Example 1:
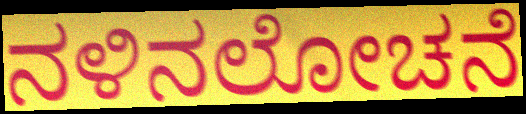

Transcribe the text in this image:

ನಳಿನಲೋಚನೆ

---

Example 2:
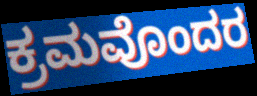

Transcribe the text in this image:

ಕ್ರಮವೊಂದರ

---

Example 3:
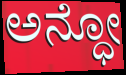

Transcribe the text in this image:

ಅನ್ಧೋ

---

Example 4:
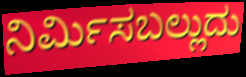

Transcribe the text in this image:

ನಿರ್ಮಿಸಬಲ್ಲುದು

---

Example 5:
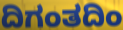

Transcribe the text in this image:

ದಿಗಂತದಿಂ